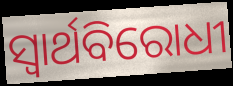
ସ୍ବାର୍ଥବିରୋଧୀ